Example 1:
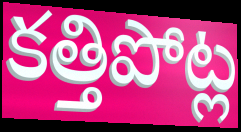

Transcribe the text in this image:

కత్తిపోట్ల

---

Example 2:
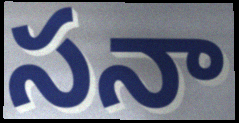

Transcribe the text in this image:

సనా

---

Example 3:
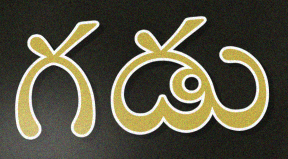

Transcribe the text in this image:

గడు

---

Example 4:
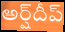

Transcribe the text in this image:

అర్ష్‌దీప్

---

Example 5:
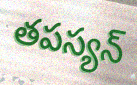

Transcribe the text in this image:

తపస్యన్